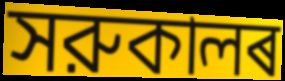
সৰুকালৰ